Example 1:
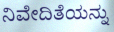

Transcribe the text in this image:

ನಿವೇದಿತೆಯನ್ನು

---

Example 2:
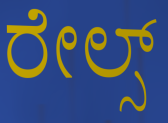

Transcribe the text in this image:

ರೇಲ್ಸ್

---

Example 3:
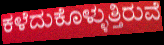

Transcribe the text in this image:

ಕಳೆದುಕೊಳ್ಳುತ್ತಿರುವೆ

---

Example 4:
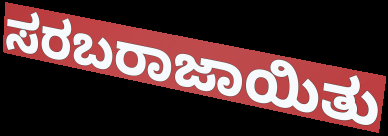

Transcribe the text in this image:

ಸರಬರಾಜಾಯಿತು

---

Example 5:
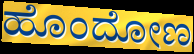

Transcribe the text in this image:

ಹೊಂದೋಣ